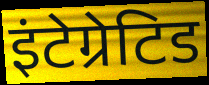
इंटेग्रेटिड